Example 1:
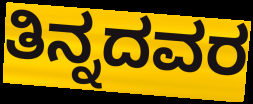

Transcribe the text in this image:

ತಿನ್ನದವರ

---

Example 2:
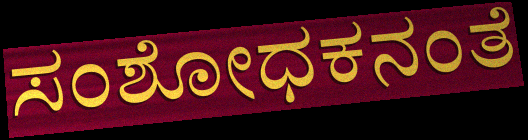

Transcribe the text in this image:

ಸಂಶೋಧಕನಂತೆ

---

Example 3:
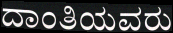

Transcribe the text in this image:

ದಾಂತಿಯವರು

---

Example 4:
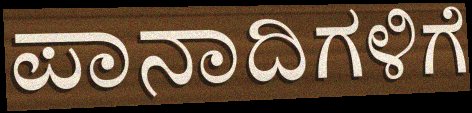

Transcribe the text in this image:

ಪಾನಾದಿಗಳಿಗೆ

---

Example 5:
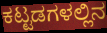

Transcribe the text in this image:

ಕಟ್ಟಡಗಳಲ್ಲಿನ